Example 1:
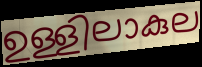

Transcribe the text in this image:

ഉള്ളിലാകുല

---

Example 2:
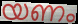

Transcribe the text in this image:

യണം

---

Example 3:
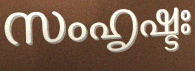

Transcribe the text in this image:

സംഹൃഷ്ടഃ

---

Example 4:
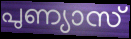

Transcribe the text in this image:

പുണ്യാസ്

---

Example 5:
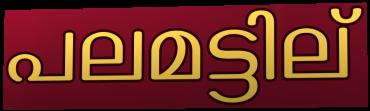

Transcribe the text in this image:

പലമട്ടില്